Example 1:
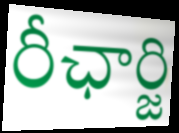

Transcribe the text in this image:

రీఛార్జి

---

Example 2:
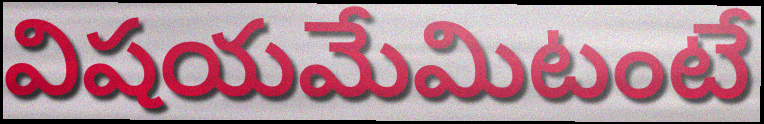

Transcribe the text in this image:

విషయమేమిటంటే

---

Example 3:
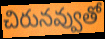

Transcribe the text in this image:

చిరునవ్వుతో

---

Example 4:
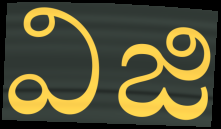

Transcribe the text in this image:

విజి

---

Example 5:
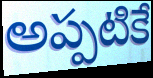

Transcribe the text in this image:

అప్పటికే